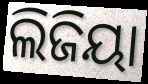
ଲିଜିୟା